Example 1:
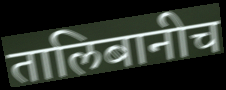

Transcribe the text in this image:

तालिबानीच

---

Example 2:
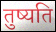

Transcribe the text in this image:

तुष्यति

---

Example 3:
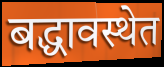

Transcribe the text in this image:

बद्धावस्थेत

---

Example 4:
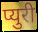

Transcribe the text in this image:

प्युरी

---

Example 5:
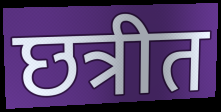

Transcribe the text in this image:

छत्रीत